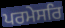
ਪਰਮੇਸਰਿ